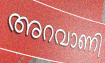
അറവാണി